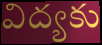
విద్యకు